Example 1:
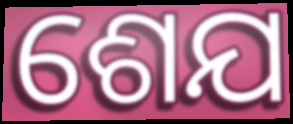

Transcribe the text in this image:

ଶେଯ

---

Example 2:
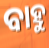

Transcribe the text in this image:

ବାହୁ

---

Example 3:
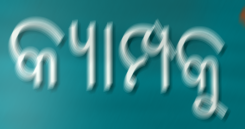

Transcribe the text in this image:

କ୍ୟାମ୍ପକୁ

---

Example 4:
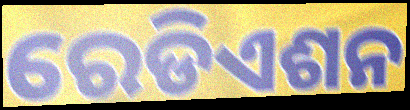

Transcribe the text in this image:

ରେଡିଏଶନ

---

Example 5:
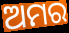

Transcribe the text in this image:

ଅମର